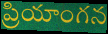
ప్రియాంగన